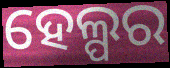
ହେଲ୍ପର